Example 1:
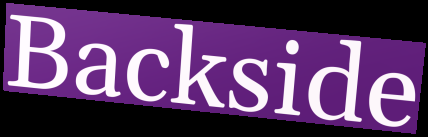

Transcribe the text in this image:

Backside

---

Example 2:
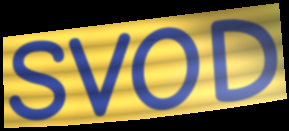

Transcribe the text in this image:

SVOD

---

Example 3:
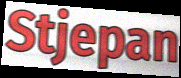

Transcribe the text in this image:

Stjepan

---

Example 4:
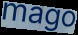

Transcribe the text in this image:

mago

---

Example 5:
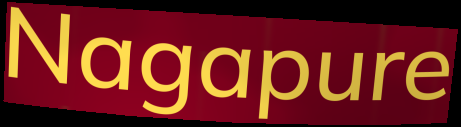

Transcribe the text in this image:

Nagapure